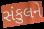
સંકુલને